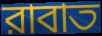
রাবাত